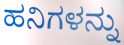
ಹನಿಗಳನ್ನು